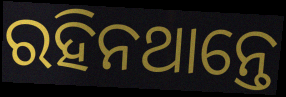
ରହିନଥାନ୍ତେ